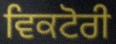
ਵਿਕਟੋਰੀ